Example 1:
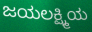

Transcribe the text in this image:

ಜಯಲಕ್ಷ್ಮಿಯ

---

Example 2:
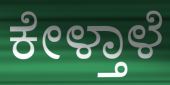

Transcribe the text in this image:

ಕೇಳ್ತಾಳೆ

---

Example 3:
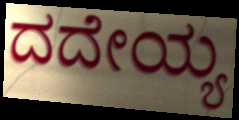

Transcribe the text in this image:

ದದೇಯ್ಯ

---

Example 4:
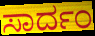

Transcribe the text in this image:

ಸಾರ್ದಂ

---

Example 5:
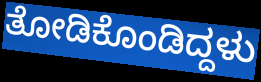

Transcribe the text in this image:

ತೋಡಿಕೊಂಡಿದ್ದಳು